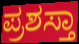
ಪ್ರಶಸ್ತಾ